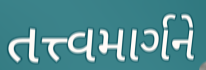
તત્ત્વમાર્ગને